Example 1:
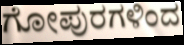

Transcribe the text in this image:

ಗೋಪುರಗಳಿಂದ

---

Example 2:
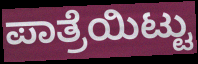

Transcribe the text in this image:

ಪಾತ್ರೆಯಿಟ್ಟು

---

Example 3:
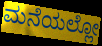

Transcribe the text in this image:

ಮನೆಯಲ್ಲೋ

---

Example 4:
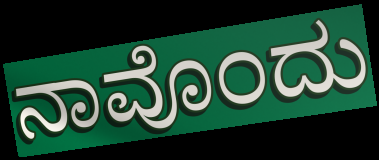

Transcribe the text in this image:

ನಾವೊಂದು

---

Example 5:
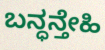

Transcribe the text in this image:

ಬನ್ಧನ್ತೇಹಿ